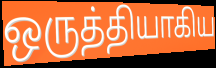
ஒருத்தியாகிய